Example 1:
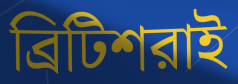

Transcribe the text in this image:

ব্রিটিশরাই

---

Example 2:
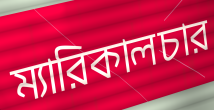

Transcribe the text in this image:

ম্যারিকালচার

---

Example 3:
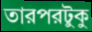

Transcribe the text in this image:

তারপরটুকু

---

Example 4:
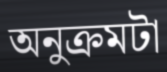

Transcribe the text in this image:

অনুক্রমটা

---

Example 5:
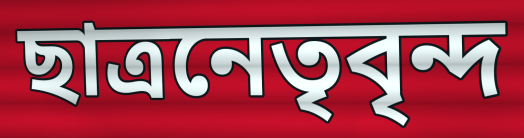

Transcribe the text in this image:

ছাত্রনেতৃবৃন্দ